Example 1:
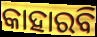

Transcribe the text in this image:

କାହାରବି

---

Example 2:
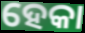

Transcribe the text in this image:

ହେକା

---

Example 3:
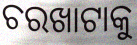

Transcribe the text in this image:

ଚରଖାଟାକୁ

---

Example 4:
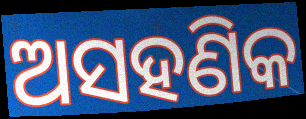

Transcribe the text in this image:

ଅସହଣିକ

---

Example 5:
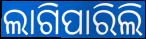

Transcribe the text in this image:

ଲାଗିପାରିଲି